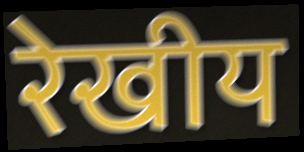
रेखीय